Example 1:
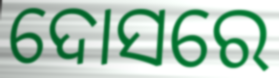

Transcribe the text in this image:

ଦୋସରେ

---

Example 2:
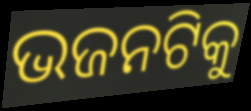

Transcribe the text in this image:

ଭଜନଟିକୁ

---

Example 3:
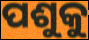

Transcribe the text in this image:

ପଶୁକୁ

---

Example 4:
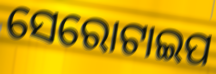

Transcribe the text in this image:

ସେରୋଟାଇପ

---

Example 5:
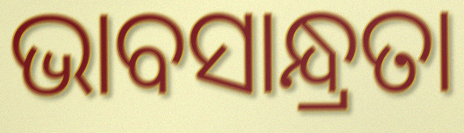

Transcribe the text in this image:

ଭାବସାନ୍ଧ୍ରତା